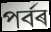
পৰ্বৰ